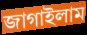
জাগাইলাম